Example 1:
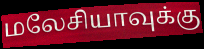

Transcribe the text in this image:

மலேசியாவுக்கு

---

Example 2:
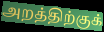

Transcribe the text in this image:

அறத்திற்குக்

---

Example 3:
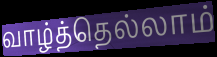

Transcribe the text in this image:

வாழ்த்தெல்லாம்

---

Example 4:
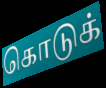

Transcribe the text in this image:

கொடுக்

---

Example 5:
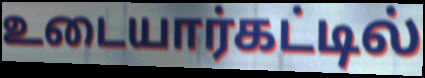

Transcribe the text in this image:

உடையார்கட்டில்